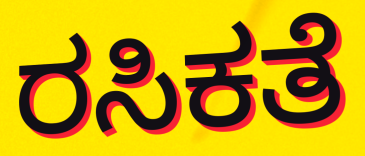
ರಸಿಕತೆ